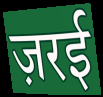
ज़रई